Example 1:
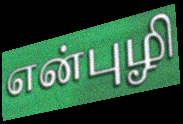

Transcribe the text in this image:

என்புழி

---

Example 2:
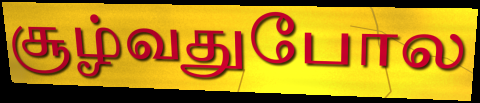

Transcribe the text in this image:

சூழ்வதுபோல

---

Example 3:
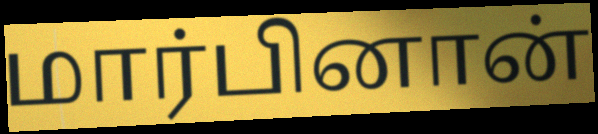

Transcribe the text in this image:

மார்பினான்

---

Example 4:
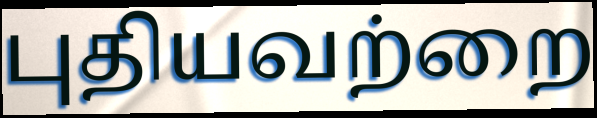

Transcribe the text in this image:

புதியவற்றை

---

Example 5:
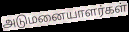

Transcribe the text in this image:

அடுமனையாளர்கள்